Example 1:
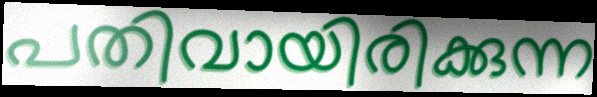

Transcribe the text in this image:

പതിവായിരിക്കുന്ന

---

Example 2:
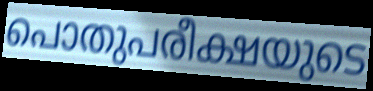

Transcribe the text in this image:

പൊതുപരീക്ഷയുടെ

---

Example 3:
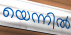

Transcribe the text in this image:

യെന്നിൽ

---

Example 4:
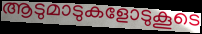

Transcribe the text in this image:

ആടുമാടുകളോടുകൂടെ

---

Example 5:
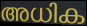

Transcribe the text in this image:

അധിക